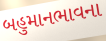
બહુમાનભાવના